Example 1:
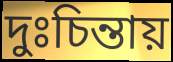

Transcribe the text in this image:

দুঃচিন্তায়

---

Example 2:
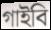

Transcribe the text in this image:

গাইবি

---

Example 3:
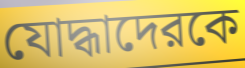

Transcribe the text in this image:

যোদ্ধাদেরকে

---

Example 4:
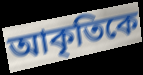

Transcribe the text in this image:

আকৃতিকে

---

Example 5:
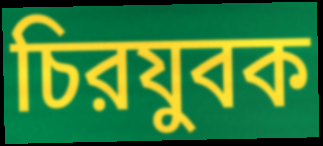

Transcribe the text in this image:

চিরযুবক